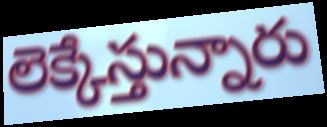
లెక్కేస్తున్నారు